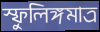
স্ফুলিঙ্গমাত্র